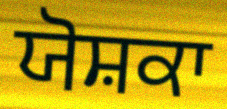
ਯੋਸ਼ਕਾ